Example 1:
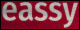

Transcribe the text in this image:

eassy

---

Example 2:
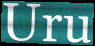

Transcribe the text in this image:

Uru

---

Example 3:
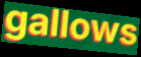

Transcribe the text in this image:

gallows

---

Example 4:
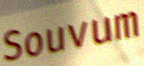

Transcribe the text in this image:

Souvum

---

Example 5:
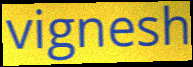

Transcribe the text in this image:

vignesh